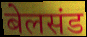
बेलसंड